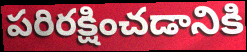
పరిరక్షించడానికి